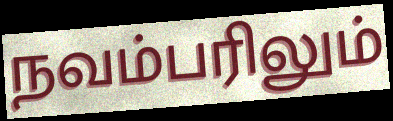
நவம்பரிலும்